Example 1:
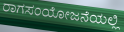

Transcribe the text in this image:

ರಾಗಸಂಯೋಜನೆಯಲ್ಲಿ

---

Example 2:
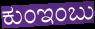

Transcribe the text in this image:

ಕುಂಇಂಬು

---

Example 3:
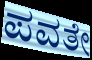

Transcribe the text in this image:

ಪವತೇ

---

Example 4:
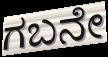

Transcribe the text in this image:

ಗಬನೇ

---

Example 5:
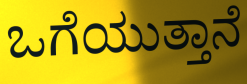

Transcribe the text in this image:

ಒಗೆಯುತ್ತಾನೆ